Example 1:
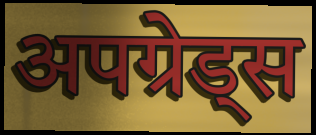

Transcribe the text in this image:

अपग्रेड्स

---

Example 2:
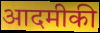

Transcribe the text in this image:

आदमीकी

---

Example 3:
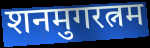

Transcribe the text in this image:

शनमुगरत्नम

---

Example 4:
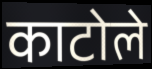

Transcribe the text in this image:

काटोले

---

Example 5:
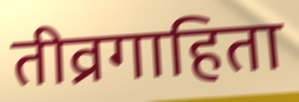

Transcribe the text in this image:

तीव्रगाहिता